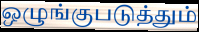
ஒழுங்குபடுத்தும்